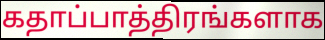
கதாப்பாத்திரங்களாக